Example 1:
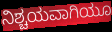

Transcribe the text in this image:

ನಿಶ್ಚಯವಾಗಿಯೂ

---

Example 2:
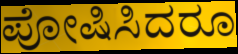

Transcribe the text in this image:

ಪೋಷಿಸಿದರೂ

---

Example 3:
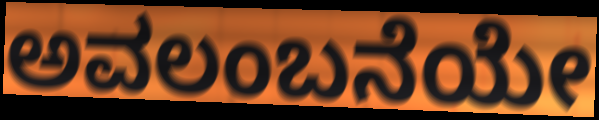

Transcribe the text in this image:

ಅವಲಂಬನೆಯೇ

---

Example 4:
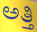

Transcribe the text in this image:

ಅತ್ತಿ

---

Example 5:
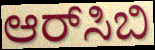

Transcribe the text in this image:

ಆರ್‌ಸಿಬಿ